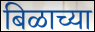
बिळाच्या